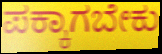
ಪಕ್ಕಾಗಬೇಕು